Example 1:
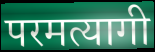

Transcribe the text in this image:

परमत्यागी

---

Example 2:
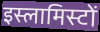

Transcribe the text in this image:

इस्लामिस्टों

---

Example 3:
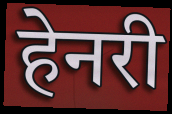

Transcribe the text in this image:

हेनरी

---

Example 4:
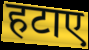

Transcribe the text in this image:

हटाए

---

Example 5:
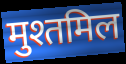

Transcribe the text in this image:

मुश्तमिल